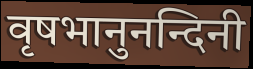
वृषभानुनन्दिनी